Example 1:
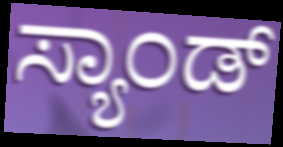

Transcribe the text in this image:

ಸ್ಯಾಂಡ್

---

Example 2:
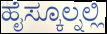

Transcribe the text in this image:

ಹೈಸ್ಕೂಲ್ನಲ್ಲಿ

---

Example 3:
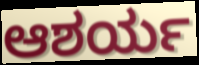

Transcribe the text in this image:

ಆಶರ್ಯ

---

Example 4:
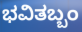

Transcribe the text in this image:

ಭವಿತಬ್ಬಂ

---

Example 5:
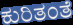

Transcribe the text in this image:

ಕುರಿತಂತೆ